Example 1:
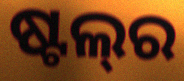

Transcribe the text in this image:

ଷ୍ଟଲ୍‌ର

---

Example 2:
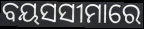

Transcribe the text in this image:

ବୟସସୀମାରେ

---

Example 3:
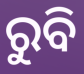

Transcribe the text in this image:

ରୁବି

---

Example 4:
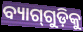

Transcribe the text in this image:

ବ୍ୟାଗ୍‍ଗୁଡ଼ିକୁ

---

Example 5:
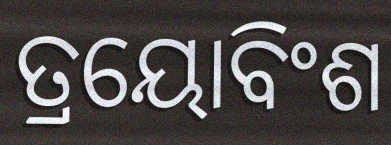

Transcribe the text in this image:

ତ୍ରୟୋବିଂଶ